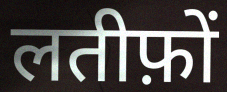
लतीफ़ों